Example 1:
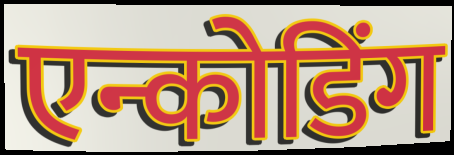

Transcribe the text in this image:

एन्कोडिंग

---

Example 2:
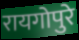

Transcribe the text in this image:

रायगोपुरे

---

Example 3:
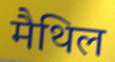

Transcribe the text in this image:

मैथिल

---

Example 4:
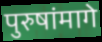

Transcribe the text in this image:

पुरुषांमागे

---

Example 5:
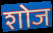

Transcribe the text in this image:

शोज